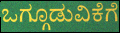
ಒಗ್ಗೂಡುವಿಕೆಗೆ